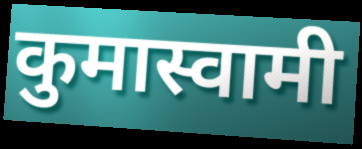
कुमास्वामी